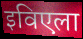
इविएला